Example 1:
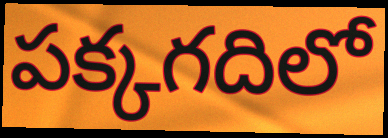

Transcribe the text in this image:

పక్కగదిలో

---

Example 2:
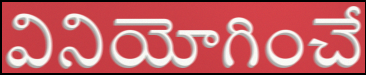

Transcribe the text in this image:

వినియోగించే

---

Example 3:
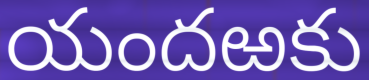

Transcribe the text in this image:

యందఱకు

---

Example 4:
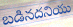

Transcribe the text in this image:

బడినదనియు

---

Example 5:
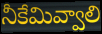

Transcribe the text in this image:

నీకేమివ్వాలి